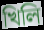
খিলি